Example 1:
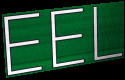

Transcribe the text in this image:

EEL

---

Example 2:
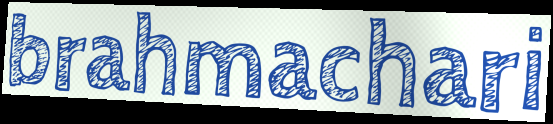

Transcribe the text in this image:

brahmachari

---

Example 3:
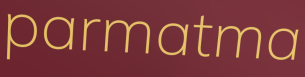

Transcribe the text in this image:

parmatma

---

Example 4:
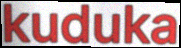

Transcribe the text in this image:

kuduka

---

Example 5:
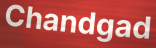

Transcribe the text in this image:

Chandgad